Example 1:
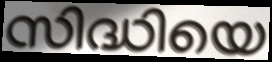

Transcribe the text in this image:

സിദ്ധിയെ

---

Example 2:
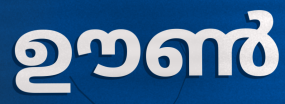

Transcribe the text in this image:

ഊൺ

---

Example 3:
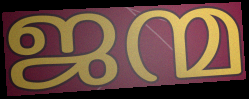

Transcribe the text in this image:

ജന്മ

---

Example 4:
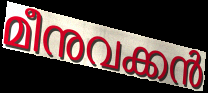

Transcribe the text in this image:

മീനുവക്കൻ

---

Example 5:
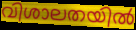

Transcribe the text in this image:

വിശാലതയിൽ